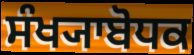
ਸੰਖ੍ਯਾਬੋਧਕ